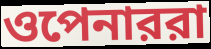
ওপেনাররা